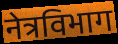
नेत्रविभाग